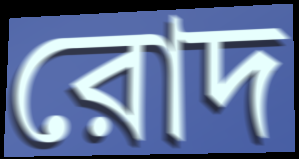
রোদ